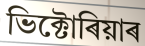
ভিক্টোৰিয়াৰ